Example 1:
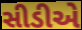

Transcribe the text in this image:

સીડીએ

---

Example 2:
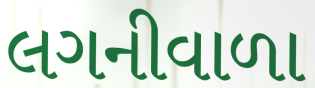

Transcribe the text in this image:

લગનીવાળા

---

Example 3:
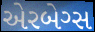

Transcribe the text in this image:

એરબેગ્સ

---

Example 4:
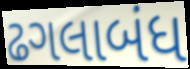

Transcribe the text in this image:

ઢગલાબંધ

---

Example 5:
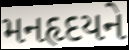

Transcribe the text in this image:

મનહૃદયને